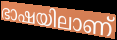
ഭാഷയിലാണ്